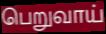
பெறுவாய்